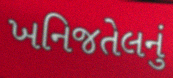
ખનિજતેલનું